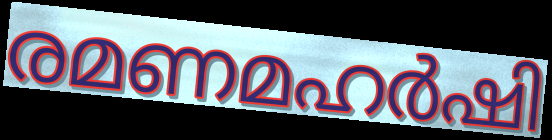
രമണമഹർഷി